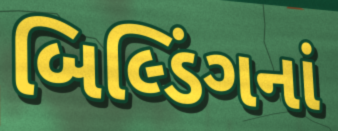
બિલ્ડિંગનાં